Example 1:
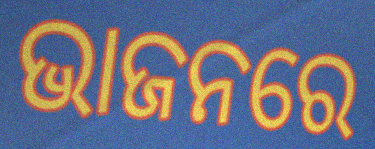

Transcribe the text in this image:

ଭାଜନରେ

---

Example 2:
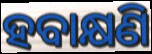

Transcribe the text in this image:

ହବାକ୍ଷଣି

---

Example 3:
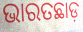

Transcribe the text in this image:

ଭାରତଛାଡ଼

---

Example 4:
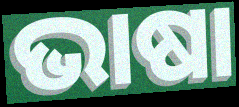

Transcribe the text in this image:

ଭାଷା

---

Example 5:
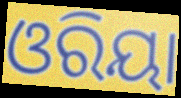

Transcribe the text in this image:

ଓରିୟା